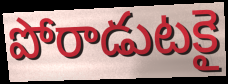
పోరాడుటకై